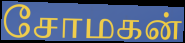
சோமகன்